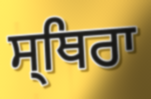
ਸ੍ਥਿਰਾ